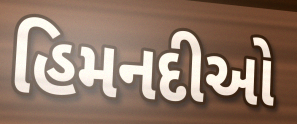
હિમનદીઓ